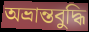
অভ্রান্তবুদ্ধি